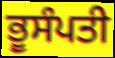
ਭੂਸੰਪਤੀ